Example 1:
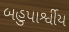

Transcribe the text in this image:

બહુપાર્શ્વીય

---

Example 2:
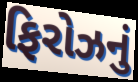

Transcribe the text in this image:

ફિરોઝનું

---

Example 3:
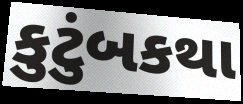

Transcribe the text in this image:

કુટુંબકથા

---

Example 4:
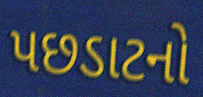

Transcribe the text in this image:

પછડાટનો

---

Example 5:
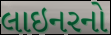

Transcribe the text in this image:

લાઇનરનો